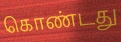
கொண்டது